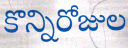
కొన్నిరోజుల